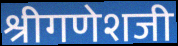
श्रीगणेशजी